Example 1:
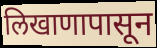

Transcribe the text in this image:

लिखाणापासून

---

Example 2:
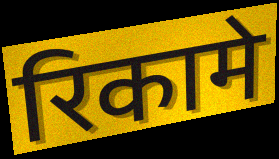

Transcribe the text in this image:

रिकामे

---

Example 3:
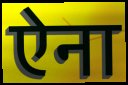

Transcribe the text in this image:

ऐना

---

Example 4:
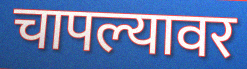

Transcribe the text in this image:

चापल्यावर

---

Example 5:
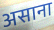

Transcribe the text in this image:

असाना